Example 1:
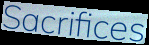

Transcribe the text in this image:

Sacrifices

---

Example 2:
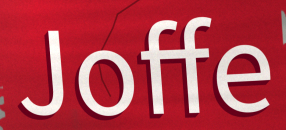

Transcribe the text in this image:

Joffe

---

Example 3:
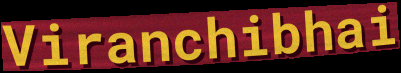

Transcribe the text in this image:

Viranchibhai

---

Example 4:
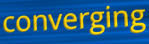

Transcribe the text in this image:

converging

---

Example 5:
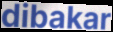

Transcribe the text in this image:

dibakar